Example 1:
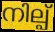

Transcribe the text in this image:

നില്പ്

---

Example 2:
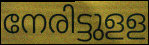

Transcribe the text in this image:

നേരിട്ടുളള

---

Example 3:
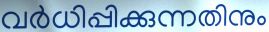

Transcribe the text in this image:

വർധിപ്പിക്കുന്നതിനും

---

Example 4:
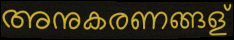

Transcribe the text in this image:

അനുകരണങ്ങള്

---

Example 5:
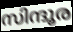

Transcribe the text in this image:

സിന്ദൂര